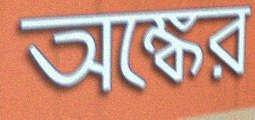
অঙ্কের